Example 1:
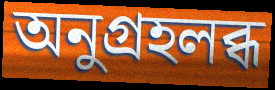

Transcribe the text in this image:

অনুগ্রহলব্ধ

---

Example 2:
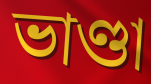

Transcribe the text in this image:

ভাণ্ডা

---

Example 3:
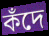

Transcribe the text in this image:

কঁদে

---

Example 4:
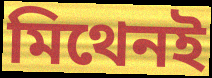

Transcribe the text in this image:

মিথেনই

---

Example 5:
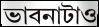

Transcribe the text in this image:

ভাবনাটাও